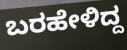
ಬರಹೇಳಿದ್ದ